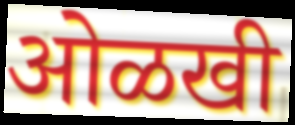
ओळखी